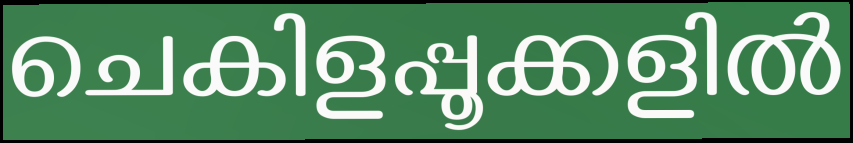
ചെകിളപ്പൂക്കളിൽ